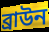
ব্রাউন